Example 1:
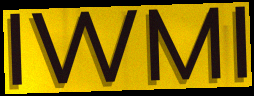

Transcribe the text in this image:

IWMI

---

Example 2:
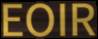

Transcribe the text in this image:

EOIR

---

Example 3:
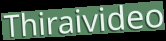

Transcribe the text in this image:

Thiraivideo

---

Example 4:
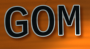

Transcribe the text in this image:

GOM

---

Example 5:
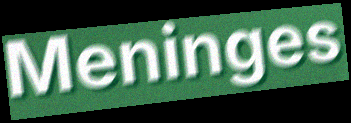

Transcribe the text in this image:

Meninges